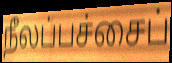
நீலப்பச்சைப்